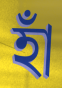
হাঁ